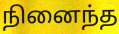
நினைந்த